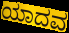
ಯಾದವ